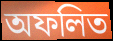
অফলিত